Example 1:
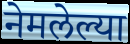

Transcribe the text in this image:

नेमलेल्या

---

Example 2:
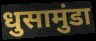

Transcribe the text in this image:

धुसामुंडा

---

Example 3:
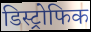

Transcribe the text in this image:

डिस्ट्रोफिक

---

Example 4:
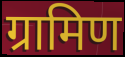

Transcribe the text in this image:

ग्रामिण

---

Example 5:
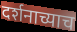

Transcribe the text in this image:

दर्शनाच्याच